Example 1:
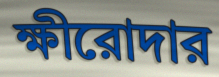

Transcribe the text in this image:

ক্ষীরোদার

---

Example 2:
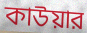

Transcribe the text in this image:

কাউয়ার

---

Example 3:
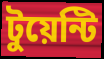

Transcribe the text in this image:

টুয়েন্টি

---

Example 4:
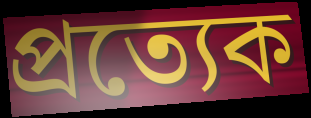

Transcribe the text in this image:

প্রত্যেক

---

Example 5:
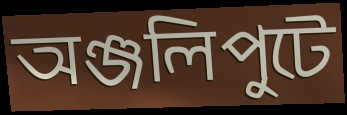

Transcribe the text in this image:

অঞ্জলিপুটে